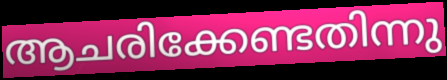
ആചരിക്കേണ്ടതിന്നു